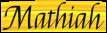
Mathiah